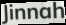
Jinnah